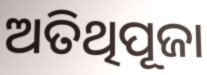
ଅତିଥିପୂଜା